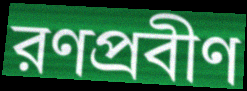
রণপ্রবীণ